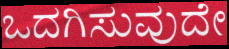
ಒದಗಿಸುವುದೇ